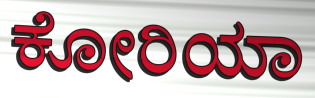
ಕೋರಿಯಾ